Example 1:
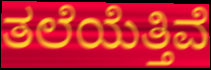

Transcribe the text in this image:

ತಲೆಯೆತ್ತಿವೆ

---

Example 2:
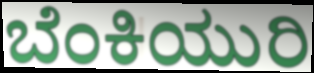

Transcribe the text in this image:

ಬೆಂಕಿಯುರಿ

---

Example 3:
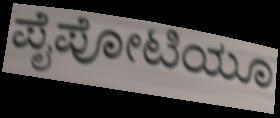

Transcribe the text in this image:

ಪೈಪೋಟಿಯೂ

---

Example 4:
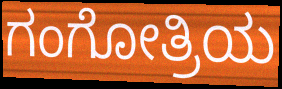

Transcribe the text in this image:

ಗಂಗೋತ್ರಿಯ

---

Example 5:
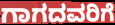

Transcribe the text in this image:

ಗಾಗದವರಿಗೆ